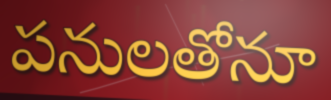
పనులతోనూ